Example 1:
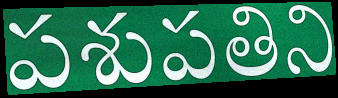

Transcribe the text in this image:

పశుపతిని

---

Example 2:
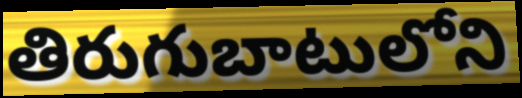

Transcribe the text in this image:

తిరుగుబాటులోని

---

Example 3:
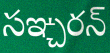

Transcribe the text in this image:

సఞ్చరన్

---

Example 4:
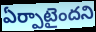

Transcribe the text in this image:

ఏర్పాటైందని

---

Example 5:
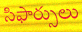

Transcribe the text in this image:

సిఫార్సులు